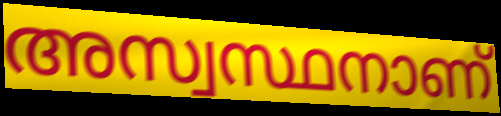
അസ്വസ്ഥനാണ്